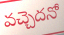
వచ్చెదనో